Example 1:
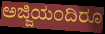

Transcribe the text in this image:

ಅಜ್ಜಿಯಂದಿರೂ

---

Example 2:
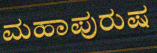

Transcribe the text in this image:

ಮಹಾಪುರುಷ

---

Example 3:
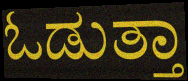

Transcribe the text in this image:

ಓಡುತ್ತಾ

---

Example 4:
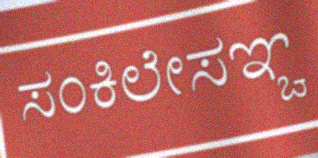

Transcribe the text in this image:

ಸಂಕಿಲೇಸಞ್ಚ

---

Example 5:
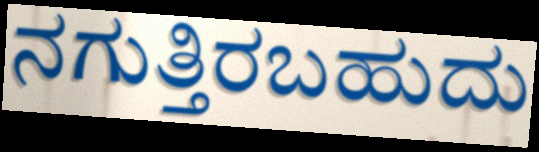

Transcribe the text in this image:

ನಗುತ್ತಿರಬಹುದು